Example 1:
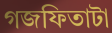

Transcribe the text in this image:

গজফিতাটা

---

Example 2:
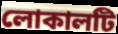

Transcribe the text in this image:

লোকালটি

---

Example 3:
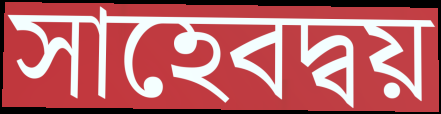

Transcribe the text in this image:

সাহেবদ্বয়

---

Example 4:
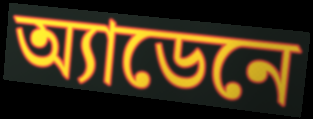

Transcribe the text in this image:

অ্যাডেনে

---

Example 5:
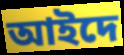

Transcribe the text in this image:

আইদে